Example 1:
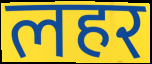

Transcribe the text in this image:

लहर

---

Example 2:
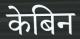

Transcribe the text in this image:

केबिन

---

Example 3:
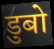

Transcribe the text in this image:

डुबो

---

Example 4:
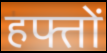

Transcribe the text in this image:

हफ्तों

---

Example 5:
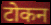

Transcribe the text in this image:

टोकन